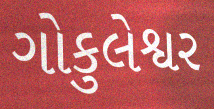
ગોકુલેશ્વર